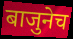
बाजुनेच